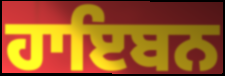
ਹਾਇਬਨ